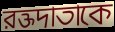
রক্তদাতাকে